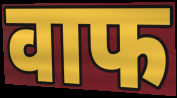
वाफ